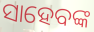
ସାହେବଙ୍କ